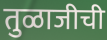
तुळाजीची